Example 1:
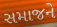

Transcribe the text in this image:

સમાજને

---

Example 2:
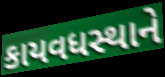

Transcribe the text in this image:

કાયવધસ્થાને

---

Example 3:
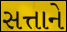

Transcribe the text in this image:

સત્તાને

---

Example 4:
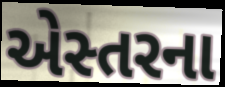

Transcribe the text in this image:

એસ્તરના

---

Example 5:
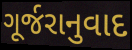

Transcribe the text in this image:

ગૂર્જરાનુવાદ